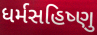
ધર્મસહિષ્ણુ